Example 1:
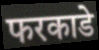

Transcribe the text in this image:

फरकाडे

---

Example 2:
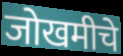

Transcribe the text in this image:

जोखमीचे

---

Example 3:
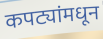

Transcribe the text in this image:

कपट्यांमधून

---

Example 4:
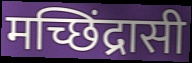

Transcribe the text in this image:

मच्छिंद्रासी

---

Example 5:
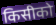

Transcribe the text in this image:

किसीको